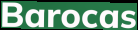
Barocas